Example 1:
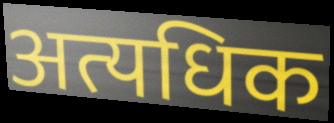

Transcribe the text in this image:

अत्‍यधिक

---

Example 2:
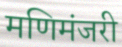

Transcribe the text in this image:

मणिमंजरी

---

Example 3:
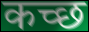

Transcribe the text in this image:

कच्‍छ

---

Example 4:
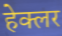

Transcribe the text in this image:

हेक्लर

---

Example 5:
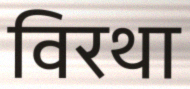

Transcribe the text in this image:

विरथा